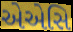
એએસિ